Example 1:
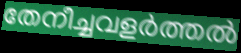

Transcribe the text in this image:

തേനീച്ചവളർത്തൽ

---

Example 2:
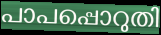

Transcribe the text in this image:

പാപപ്പൊറുതി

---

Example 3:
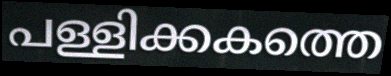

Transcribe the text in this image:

പള്ളിക്കകത്തെ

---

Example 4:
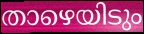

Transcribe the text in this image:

താഴെയിടും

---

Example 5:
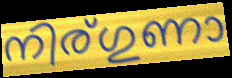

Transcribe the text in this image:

നിര്ഗുണാ